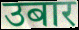
उबार